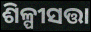
ଶିଳ୍ପୀସତ୍ତା